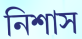
নিশাস